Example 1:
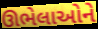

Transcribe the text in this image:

ઊભેલાઓને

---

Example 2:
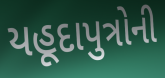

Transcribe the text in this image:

યહૂદાપુત્રોની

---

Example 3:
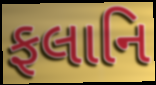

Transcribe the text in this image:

ફલાનિ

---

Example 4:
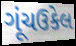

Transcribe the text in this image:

ગૂંચઉકેલ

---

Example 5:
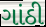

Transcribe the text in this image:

ગાંઠી